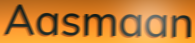
Aasmaan